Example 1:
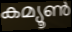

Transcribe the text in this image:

കമ്യൂൺ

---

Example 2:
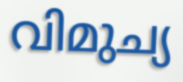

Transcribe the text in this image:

വിമുച്യ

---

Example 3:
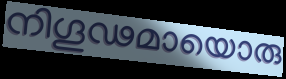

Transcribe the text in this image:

നിഗൂഢമായൊരു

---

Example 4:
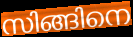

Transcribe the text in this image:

സിങ്ങിനെ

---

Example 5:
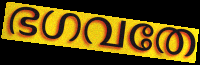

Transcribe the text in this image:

ഭഗവതേ